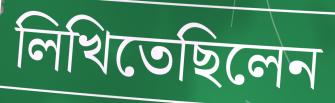
লিখিতেছিলেন